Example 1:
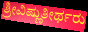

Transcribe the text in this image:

ಶ್ರೀವಿಷ್ಣುತೀರ್ಥರು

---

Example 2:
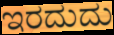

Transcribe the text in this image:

ಇರದುದು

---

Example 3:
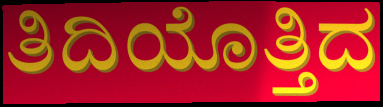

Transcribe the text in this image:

ತಿದಿಯೊತ್ತಿದ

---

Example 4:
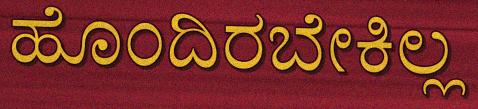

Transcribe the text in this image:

ಹೊಂದಿರಬೇಕಿಲ್ಲ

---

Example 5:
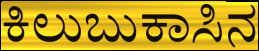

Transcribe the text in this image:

ಕಿಲುಬುಕಾಸಿನ